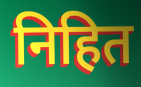
निहित